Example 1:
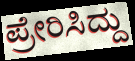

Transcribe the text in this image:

ಪ್ರೇರಿಸಿದ್ದು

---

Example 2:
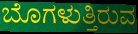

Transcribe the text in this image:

ಬೊಗಳುತ್ತಿರುವ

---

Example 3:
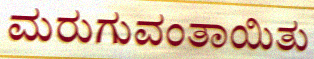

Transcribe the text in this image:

ಮರುಗುವಂತಾಯಿತು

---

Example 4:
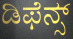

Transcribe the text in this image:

ಡಿಫೆನ್ಸ್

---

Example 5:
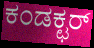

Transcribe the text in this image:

ಕಂಡಕ್ಟರ್